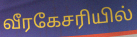
வீரகேசரியில்